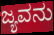
ಜ್ಯವನು